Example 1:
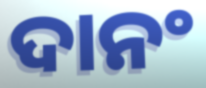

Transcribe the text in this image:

ଦାନଂ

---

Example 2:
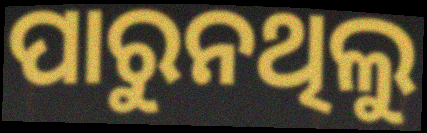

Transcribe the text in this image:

ପାରୁନଥିଲୁ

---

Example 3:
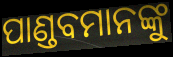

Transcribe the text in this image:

ପାଣ୍ଡବମାନଙ୍କୁ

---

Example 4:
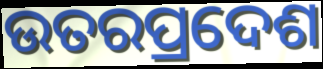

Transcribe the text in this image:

ଉତରପ୍ରଦେଶ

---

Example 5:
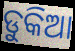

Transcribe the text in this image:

ଡୁକିଆ